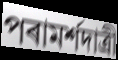
পৰামৰ্শদাত্ৰী